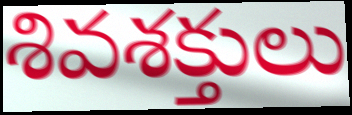
శివశక్తులు